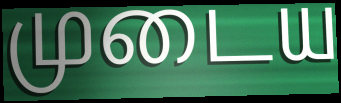
முடைய